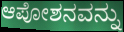
ಆಪೋಶನವನ್ನು